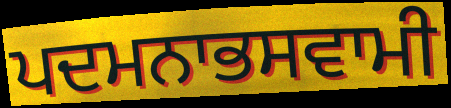
ਪਦਮਨਾਭਸਵਾਮੀ